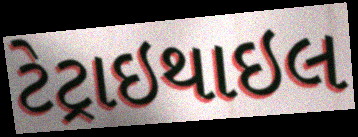
ટેટ્રાઇથાઇલ